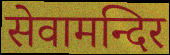
सेवामन्दिर